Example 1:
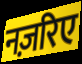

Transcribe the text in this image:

नज़रिए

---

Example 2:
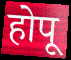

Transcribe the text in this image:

होपू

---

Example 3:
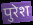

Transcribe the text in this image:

पुरेश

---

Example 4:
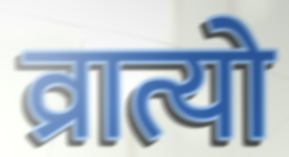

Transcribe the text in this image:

व्रात्यो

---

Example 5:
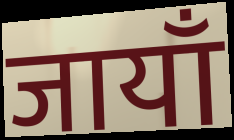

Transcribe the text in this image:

जायाँ